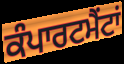
ਕੰਪਾਰਟਮੈਂਟਾਂ